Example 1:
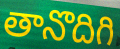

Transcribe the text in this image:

తానొదిగి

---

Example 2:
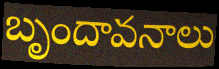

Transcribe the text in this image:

బృందావనాలు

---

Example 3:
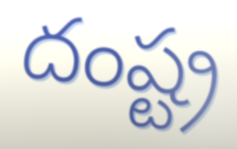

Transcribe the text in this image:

దంష్ట్ర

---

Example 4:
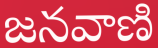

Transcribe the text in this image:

జనవాణి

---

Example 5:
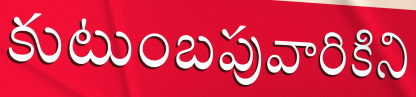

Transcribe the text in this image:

కుటుంబపువారికిని